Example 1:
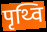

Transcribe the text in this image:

पृथ्वि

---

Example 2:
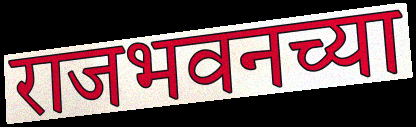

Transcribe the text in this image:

राजभवनच्या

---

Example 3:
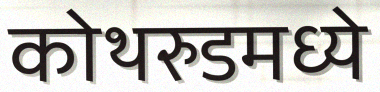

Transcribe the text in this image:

कोथरुडमध्ये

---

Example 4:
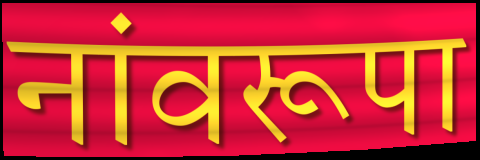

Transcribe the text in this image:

नांवरूपा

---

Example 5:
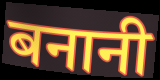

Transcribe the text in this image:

बनानी